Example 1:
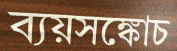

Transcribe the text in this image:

ব্যয়সঙ্কোচ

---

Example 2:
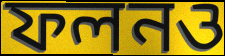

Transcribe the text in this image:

ফলনও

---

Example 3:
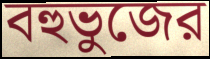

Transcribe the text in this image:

বহুভুজের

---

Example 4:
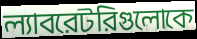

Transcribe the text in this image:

ল্যাবরেটরিগুলোকে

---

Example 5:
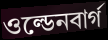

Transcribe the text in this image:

ওল্ডেনবার্গ